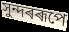
সুন্দৰৰূপে